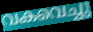
വകവെച്ചു